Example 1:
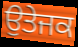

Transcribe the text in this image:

ਉਤੇਜਕ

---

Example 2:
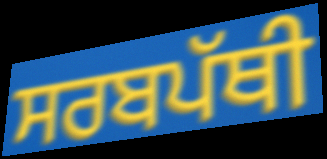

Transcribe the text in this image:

ਸਰਬਪੱਥੀ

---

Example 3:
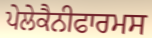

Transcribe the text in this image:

ਪੇਲੇਕੈਨੀਫਾਰਮਸ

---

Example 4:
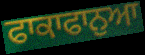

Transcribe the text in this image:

ਫਾਕਾਫਾਨੁਆ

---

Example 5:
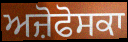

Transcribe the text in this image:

ਅਜ਼ੋਫੋਸਕਾ